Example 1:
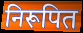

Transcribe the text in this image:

निरूपित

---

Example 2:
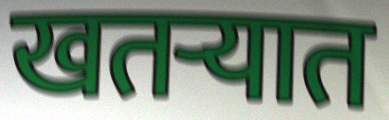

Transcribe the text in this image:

खतऱ्यात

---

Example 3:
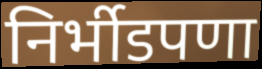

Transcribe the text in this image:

निर्भीडपणा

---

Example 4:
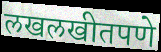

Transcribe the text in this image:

लखलखीतपणे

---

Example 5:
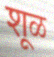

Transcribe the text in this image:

शूळ